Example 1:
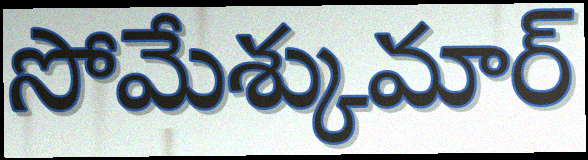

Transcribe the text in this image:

సోమేశ్కుమార్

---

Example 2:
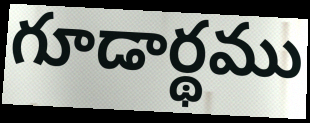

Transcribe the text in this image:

గూడార్థము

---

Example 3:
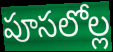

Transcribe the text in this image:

పూసలోల్ల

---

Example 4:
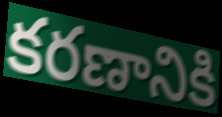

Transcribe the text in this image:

కరణానికి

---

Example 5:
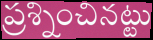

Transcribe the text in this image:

ప్రశ్నించినట్టు